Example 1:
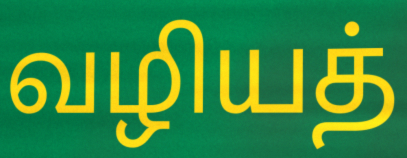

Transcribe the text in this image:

வழியத்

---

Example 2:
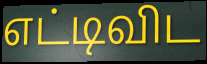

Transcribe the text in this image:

எட்டிவிட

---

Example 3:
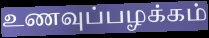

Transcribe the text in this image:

உணவுப்பழக்கம்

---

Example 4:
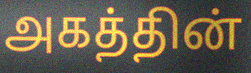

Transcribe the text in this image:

அகத்தின்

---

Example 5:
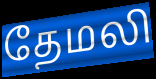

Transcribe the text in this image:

தேமலி